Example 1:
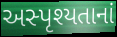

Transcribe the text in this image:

અસ્પૃશ્યતાનાં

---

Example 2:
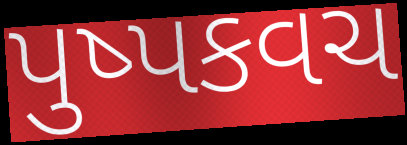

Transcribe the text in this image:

પુષ્પકવચ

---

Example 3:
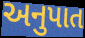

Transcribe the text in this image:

અનુપાત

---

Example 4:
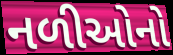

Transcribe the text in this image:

નળીઓનો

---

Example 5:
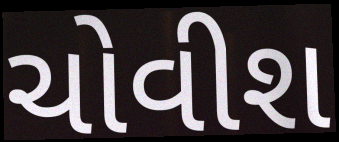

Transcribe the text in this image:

ચોવીશ